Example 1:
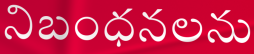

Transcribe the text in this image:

నిబంధనలను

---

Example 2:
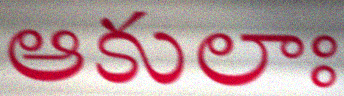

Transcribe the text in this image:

ఆకులాః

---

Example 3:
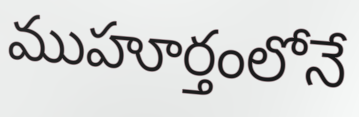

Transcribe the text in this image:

ముహూర్తంలోనే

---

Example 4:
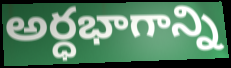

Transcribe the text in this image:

అర్ధభాగాన్ని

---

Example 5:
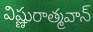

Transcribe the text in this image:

విష్ణురాత్మవాన్